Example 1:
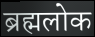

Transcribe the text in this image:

ब्रह्मलोक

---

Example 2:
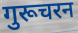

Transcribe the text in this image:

गुरूचरन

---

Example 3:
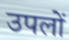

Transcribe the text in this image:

उपलों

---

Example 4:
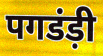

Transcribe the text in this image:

पगडंड़ी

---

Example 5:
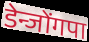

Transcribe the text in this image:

डेन्जोंगपा